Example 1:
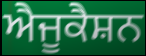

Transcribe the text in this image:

ਐਜੂਕੈਸ਼ਨ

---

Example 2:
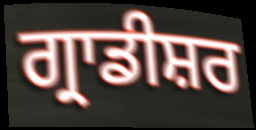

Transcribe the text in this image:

ਗ੍ਰਾਡੀਸ਼ਰ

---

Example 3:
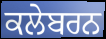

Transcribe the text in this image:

ਕਲੇਬਰਨ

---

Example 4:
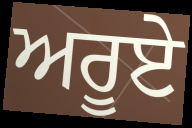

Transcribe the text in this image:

ਅਰੂਏ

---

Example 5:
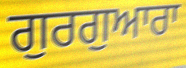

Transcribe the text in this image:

ਗੁਰਗੁਆਰਾ